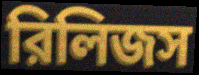
রিলিজস